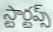
స్టార్టప్స్